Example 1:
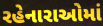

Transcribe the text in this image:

રહેનારાઓમાં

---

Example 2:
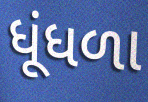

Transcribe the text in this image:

ધૂંધળા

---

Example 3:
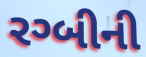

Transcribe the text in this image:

રગ્બીની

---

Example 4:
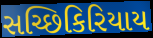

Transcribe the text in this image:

સચ્છિકિરિયાય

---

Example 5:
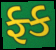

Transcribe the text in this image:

ફ્ક